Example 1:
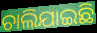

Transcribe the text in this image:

ଚାଲିଯାଇଛି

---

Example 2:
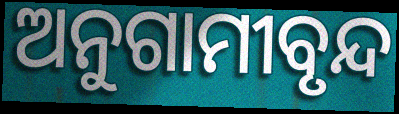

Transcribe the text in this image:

ଅନୁଗାମୀବୃନ୍ଦ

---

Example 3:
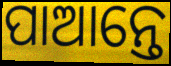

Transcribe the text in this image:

ପାଆନ୍ତେ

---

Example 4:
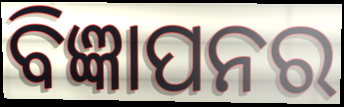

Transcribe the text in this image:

ବିଜ୍ଞାପନର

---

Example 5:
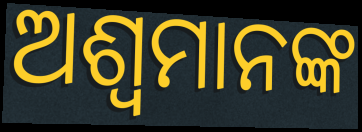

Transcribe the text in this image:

ଅଶ୍ୱମାନଙ୍କ